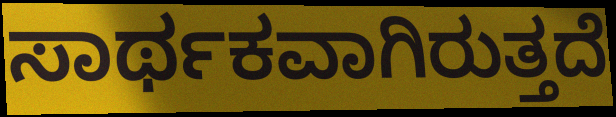
ಸಾರ್ಥಕವಾಗಿರುತ್ತದೆ